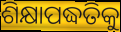
ଶିକ୍ଷାପଦ୍ଧତିକୁ